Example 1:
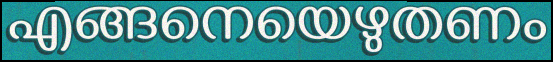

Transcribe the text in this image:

എങ്ങനെയെഴുതണം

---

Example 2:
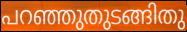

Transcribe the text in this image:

പറഞ്ഞുതുടങ്ങിതു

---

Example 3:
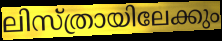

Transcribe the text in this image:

ലിസ്ത്രായിലേക്കും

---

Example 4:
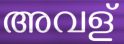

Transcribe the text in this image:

അവള്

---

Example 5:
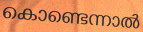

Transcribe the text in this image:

കൊണ്ടെന്നാൽ